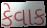
કેવાક